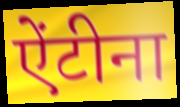
ऐंटीना